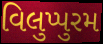
વિલુપ્પુરમ